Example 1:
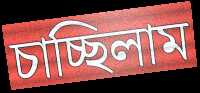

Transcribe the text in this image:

চাচ্ছিলাম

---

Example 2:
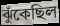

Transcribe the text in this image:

ঝুঁকেছিল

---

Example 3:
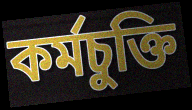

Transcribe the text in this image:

কর্মচুক্তি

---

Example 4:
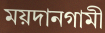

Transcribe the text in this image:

ময়দানগামী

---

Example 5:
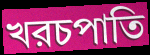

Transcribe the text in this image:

খরচপাতি